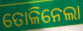
ତୋଳିନେଲା